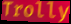
Trolly